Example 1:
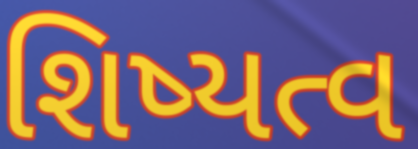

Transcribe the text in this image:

શિષ્યત્વ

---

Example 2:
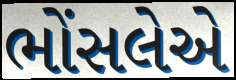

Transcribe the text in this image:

ભોંસલેએ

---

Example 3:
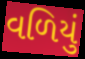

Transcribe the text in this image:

વળિયું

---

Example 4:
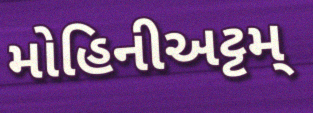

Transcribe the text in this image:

મોહિનીઅટ્ટમ્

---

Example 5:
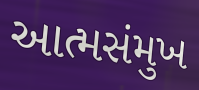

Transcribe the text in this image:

આત્મસંમુખ